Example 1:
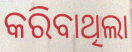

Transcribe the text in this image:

କରିବାଥିଲା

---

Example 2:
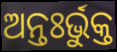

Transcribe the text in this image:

ଅନ୍ତଃର୍ଭୁକ୍ତ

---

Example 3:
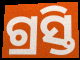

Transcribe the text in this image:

ଗ୍ରସ୍ତି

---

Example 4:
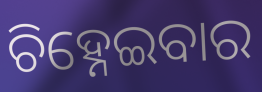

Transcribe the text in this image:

ଚିହ୍ନେଇବାର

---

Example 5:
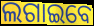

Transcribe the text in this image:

ଲଗାଇବେ